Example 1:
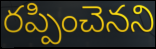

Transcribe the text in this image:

రప్పించెనని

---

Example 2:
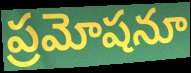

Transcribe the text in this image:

ప్రమోషనూ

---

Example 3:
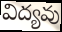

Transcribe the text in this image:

విద్యవు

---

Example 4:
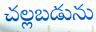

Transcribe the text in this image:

చల్లబడును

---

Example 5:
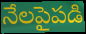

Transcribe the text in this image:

నేలపైపడి